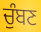
ਚੁੰਬਣ